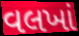
વલખાં